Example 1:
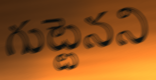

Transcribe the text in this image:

గుట్టెనని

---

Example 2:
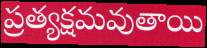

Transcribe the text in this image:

ప్రత్యక్షమవుతాయి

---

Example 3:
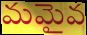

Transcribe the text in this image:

మమైవ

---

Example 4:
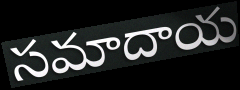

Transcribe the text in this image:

సమాదాయ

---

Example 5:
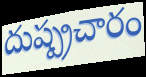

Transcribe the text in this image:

దుష్ప్రచారం